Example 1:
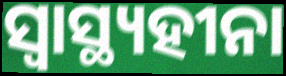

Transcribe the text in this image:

ସ୍ଵାସ୍ଥ୍ୟହୀନା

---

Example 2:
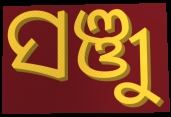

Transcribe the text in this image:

ସଞ୍ଜୁ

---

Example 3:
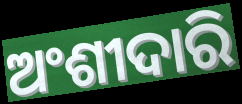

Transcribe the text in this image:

ଅଂଶୀଦାରି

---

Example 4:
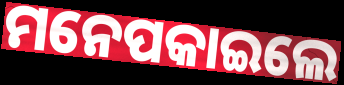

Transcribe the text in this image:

ମନେପକାଇଲେ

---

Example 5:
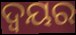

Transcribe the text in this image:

ଦ୍ଵୟର